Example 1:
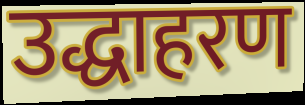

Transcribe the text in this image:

उद्धाहरण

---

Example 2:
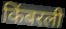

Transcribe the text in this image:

किंबरली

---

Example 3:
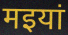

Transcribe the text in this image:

मइयां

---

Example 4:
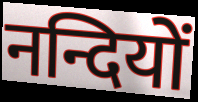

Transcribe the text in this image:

नन्दियों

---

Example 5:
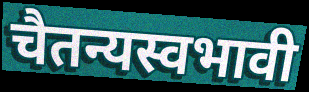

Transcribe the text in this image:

चैतन्यस्वभावी